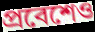
প্রবেশেও